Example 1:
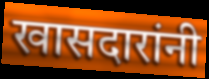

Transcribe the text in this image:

खासदारांनी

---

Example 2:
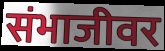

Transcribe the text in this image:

संभाजीवर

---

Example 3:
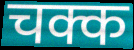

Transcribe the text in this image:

चक्क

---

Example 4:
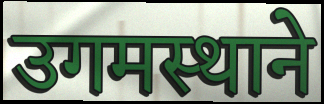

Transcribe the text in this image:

उगमस्थाने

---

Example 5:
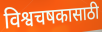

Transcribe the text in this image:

विश्वचषकासाठी